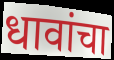
धावांचा